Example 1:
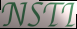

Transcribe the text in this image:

NSTI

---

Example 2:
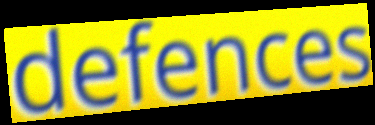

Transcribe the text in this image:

defences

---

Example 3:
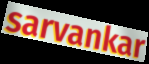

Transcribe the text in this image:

sarvankar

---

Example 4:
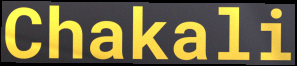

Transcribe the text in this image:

Chakali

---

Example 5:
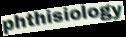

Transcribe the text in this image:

phthisiology